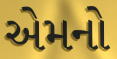
એમનો